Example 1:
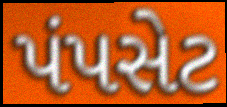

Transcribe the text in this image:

પંપસેટ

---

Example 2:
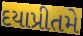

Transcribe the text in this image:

દયાપ્રીતમે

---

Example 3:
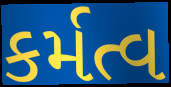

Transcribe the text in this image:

કર્મત્વ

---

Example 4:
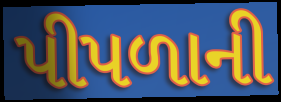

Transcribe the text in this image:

પીપળાની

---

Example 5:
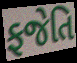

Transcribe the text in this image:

ફજેતિ